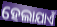
ହେଲାଯାଏଁ